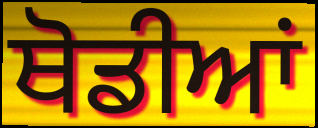
ਥੋਡੀਆਂ